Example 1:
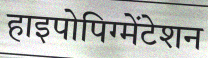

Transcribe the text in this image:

हाइपोपिग्मेंटेशन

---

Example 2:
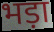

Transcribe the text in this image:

भड़ा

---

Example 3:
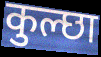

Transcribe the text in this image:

कुल्छा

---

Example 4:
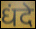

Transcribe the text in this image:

धंदे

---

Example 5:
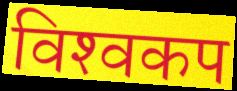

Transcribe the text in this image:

विश्‍वकप